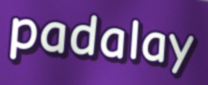
padalay